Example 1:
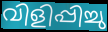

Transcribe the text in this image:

വിളിപ്പിച്ചു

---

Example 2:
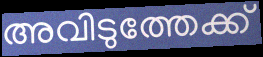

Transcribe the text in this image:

അവിടുത്തേക്ക്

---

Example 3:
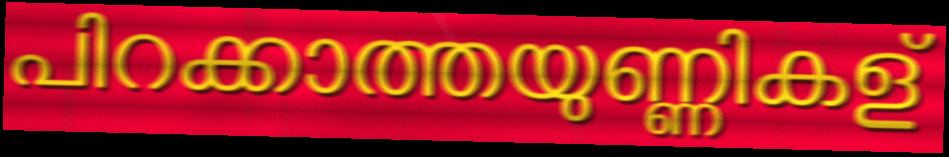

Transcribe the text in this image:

പിറക്കാത്തയുണ്ണികള്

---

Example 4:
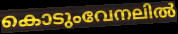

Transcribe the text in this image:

കൊടുംവേനലിൽ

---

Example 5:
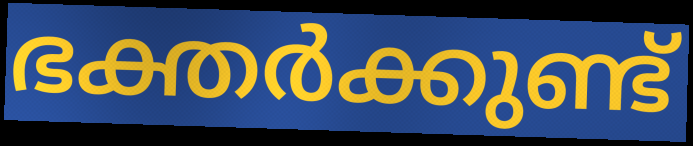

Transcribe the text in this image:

ഭക്തർക്കുണ്ട്